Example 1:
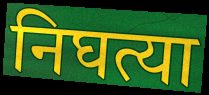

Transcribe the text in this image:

निघत्या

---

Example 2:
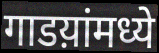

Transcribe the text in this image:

गाडय़ांमध्ये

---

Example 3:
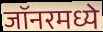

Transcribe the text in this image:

जॉनरमध्ये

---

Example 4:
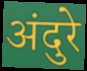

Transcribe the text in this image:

अंदुरे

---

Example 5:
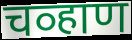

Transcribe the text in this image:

चव्हाण